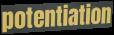
potentiation